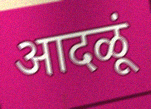
आदळूं